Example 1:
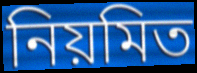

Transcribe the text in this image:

নিয়মিত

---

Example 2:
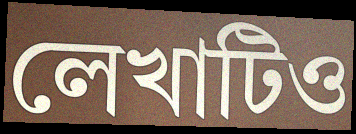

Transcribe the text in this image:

লেখাটিও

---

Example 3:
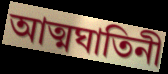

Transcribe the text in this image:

আত্মঘাতিনী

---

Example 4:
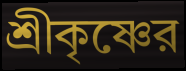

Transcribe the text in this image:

শ্রীকৃষ্ণের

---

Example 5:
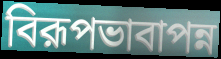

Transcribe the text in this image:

বিরূপভাবাপন্ন